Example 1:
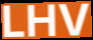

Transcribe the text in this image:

LHV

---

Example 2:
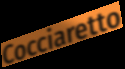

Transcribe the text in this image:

Cocciaretto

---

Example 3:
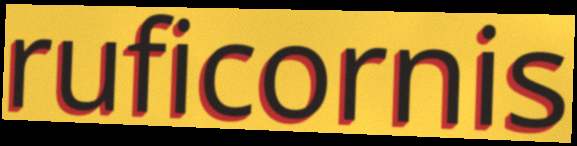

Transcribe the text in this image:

ruficornis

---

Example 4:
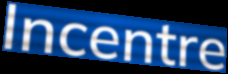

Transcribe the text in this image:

Incentre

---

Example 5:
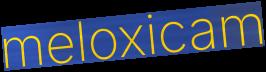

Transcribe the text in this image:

meloxicam